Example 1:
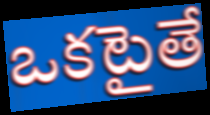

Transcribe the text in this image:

ఒకటైతే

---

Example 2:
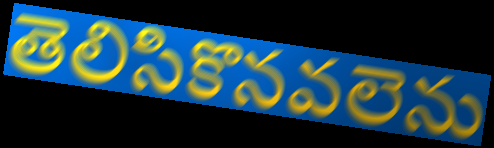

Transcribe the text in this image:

తెలిసికొనవలెను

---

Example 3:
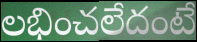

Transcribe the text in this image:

లభించలేదంటే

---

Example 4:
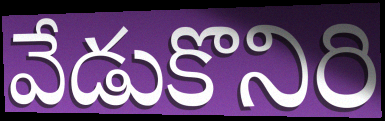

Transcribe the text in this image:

వేడుకొనిరి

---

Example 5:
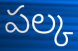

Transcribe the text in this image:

పల్క